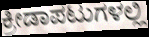
ಕ್ರೀಡಾಪಟುಗಳಲ್ಲಿ